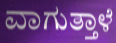
ವಾಗುತ್ತಾಳೆ